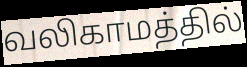
வலிகாமத்தில்